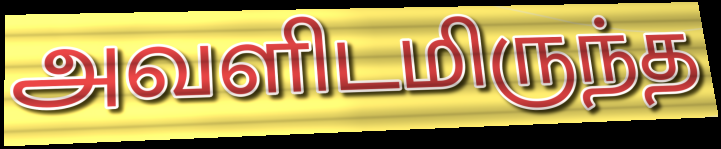
அவளிடமிருந்த